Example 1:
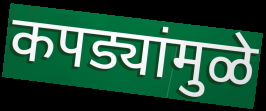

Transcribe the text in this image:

कपड्यांमुळे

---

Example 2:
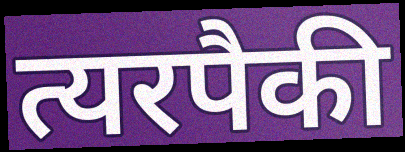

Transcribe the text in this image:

त्यरपैकी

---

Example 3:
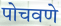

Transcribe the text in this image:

पोचवणे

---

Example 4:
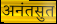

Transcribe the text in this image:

अनंतसुत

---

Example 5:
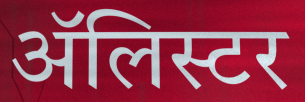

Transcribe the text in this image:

ॲलिस्टर